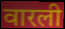
वारली